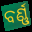
ବର୍ଣ୍ଣ୍